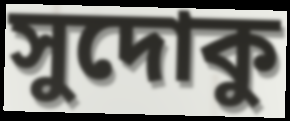
সুদোকু